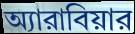
অ্যারাবিয়ার